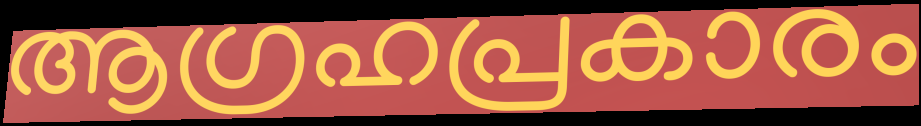
ആഗ്രഹപ്രകാരം